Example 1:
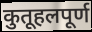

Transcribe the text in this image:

कुतूहलपूर्ण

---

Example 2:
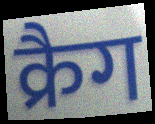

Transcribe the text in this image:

क्रैग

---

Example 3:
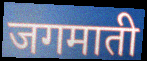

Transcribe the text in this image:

जगमाती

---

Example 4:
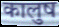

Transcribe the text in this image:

कालुष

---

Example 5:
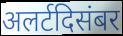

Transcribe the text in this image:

अलर्टदिसंबर